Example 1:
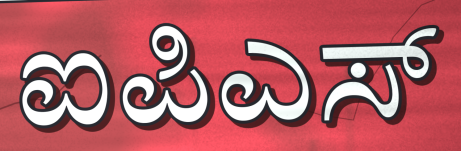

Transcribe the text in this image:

ಐಪಿಎಸ್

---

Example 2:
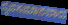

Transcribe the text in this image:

ದೈವಸಮಾನವಾದ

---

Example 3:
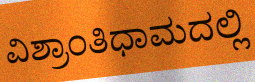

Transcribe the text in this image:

ವಿಶ್ರಾಂತಿಧಾಮದಲ್ಲಿ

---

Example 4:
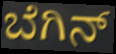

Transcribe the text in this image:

ಬೆಗಿನ್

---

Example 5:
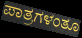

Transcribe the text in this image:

ಪಾತ್ರಗಳಂತೂ